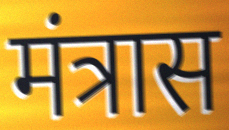
मंत्रास